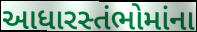
આધારસ્તંભોમાંના